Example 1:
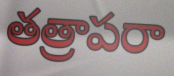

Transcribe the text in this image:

తత్రాపరా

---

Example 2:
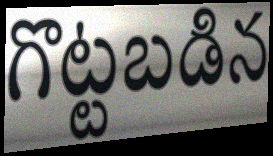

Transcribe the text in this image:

గొట్టబడిన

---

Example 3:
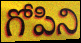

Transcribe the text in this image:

గోపిని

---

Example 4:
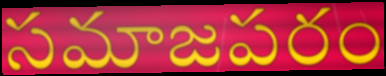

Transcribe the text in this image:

సమాజపరం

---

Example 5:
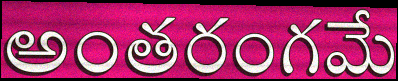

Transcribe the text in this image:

అంతరంగమే